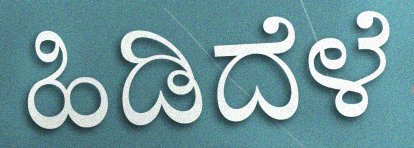
ಹಿಡಿದೆಳೆ